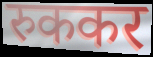
रुककर